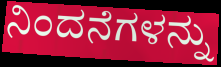
ನಿಂದನೆಗಳನ್ನು